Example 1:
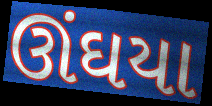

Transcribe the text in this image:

ઊંઘયા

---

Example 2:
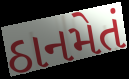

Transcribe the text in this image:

ઠાનમેતં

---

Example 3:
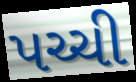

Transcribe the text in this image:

પચ્ચી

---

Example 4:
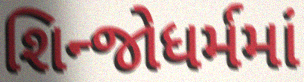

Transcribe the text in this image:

શિન્જોધર્મમાં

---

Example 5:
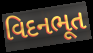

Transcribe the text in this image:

વિદનભૂત